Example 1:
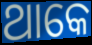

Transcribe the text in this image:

ଥାକେ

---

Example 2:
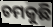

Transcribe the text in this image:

ଚମକୁଛି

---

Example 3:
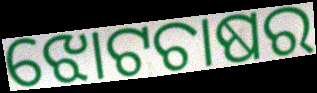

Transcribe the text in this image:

ଝୋଟଚାଷର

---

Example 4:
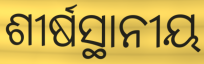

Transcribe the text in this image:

ଶୀର୍ଷସ୍ଥାନୀୟ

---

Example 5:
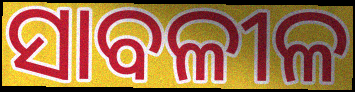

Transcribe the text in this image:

ସାବଳୀଳ